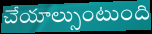
చేయాల్సుంటుంది